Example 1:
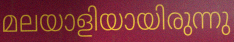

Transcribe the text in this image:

മലയാളിയായിരുന്നു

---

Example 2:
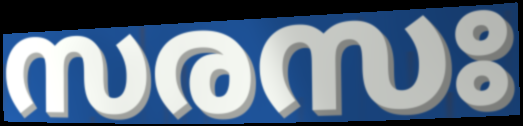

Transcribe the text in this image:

സരസഃ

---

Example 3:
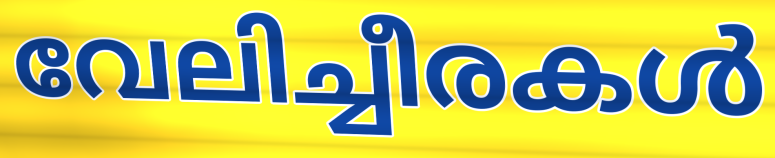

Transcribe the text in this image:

വേലിച്ചീരകൾ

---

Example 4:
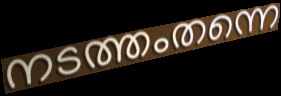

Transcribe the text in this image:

നടത്തംതന്നെ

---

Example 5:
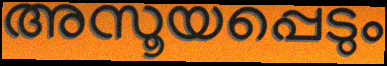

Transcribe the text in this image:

അസൂയപ്പെടും